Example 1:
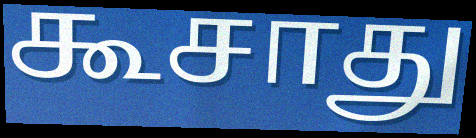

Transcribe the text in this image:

கூசாது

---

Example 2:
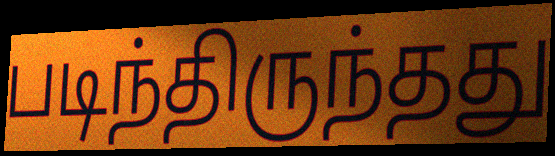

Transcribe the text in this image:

படிந்திருந்தது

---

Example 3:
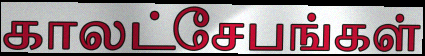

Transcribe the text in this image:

காலட்சேபங்கள்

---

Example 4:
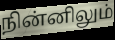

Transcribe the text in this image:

நின்னிலும்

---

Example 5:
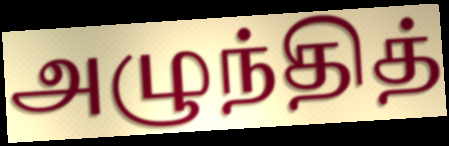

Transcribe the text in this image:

அழுந்தித்